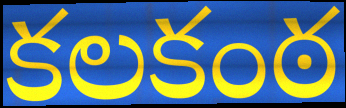
కలకంఠ